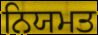
ਨਿਯਮਤ